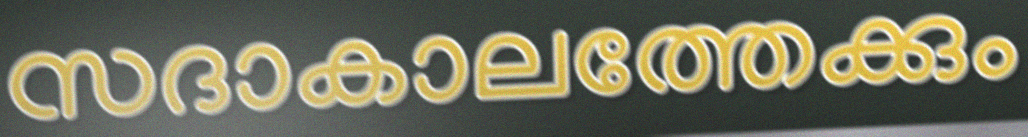
സദാകാലത്തേക്കും